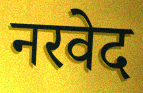
नरवेद